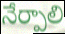
నేర్పాలి